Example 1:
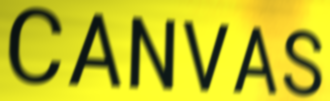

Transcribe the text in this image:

CANVAS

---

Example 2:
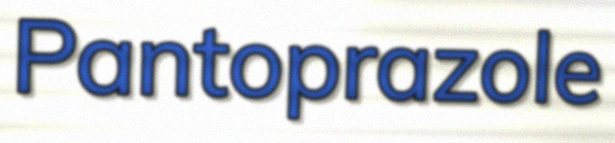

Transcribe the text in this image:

Pantoprazole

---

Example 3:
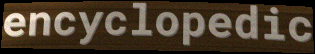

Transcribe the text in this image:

encyclopedic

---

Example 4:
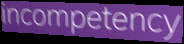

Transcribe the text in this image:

incompetency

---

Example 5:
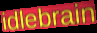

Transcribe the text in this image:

idlebrain